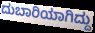
ದುಬಾರಿಯಾಗಿದ್ದು